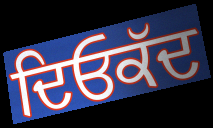
ਦਿਓਕੱਦ